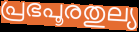
പ്രഭപൂരതുല്യ